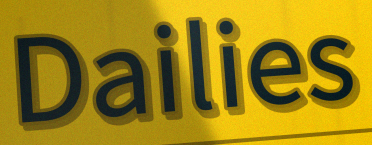
Dailies